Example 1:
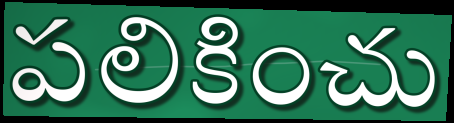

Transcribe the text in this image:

పలికించు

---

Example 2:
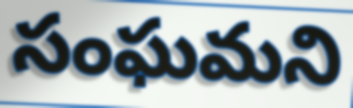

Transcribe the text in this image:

సంఘమని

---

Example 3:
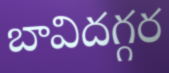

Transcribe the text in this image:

బావిదగ్గర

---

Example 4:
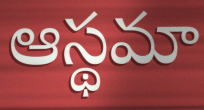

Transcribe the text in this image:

ఆస్థమా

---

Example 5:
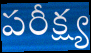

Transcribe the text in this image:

పరీక్ష్య